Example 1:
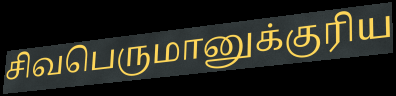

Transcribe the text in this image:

சிவபெருமானுக்குரிய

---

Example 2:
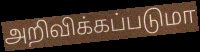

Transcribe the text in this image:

அறிவிக்கப்படுமா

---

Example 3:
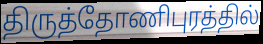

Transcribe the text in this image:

திருத்தோணிபுரத்தில்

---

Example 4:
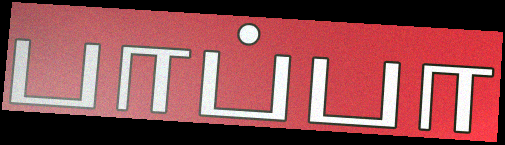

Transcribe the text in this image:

பாப்பா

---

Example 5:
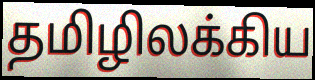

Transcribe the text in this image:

தமிழிலக்கிய